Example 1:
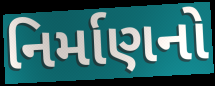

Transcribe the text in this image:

નિર્માણનો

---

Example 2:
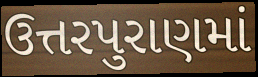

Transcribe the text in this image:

ઉત્તરપુરાણમાં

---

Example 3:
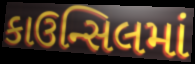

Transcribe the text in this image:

કાઉન્સિલમાં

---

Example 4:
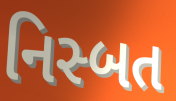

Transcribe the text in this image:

નિસ્બત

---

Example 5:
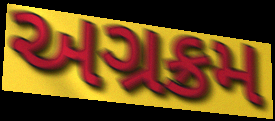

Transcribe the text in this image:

અગ્રક્રમ